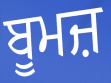
ਬੂਮਜ਼